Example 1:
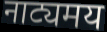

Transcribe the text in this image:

नाट्यमय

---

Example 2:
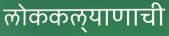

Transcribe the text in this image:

लोककल्याणाची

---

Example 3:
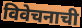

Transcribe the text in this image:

विवेचनाची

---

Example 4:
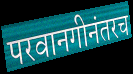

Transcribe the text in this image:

परवानगीनंतरच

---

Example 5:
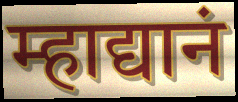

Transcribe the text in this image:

म्हाद्यानं